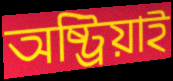
অষ্ট্ৰিয়াই